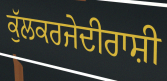
ਕੁੱਲਕਰਜੇਦੀਰਾਸ਼ੀ